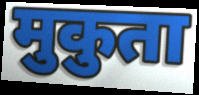
मुकुता